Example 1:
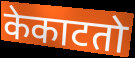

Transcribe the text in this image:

केकाटतो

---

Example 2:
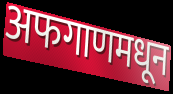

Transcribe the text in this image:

अफगाणमधून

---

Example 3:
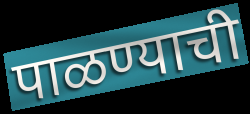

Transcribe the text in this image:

पाळण्याची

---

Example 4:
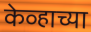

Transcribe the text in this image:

केव्हाच्या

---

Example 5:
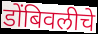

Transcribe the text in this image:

डोंबिवलीचे